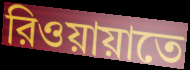
রিওয়ায়াতে